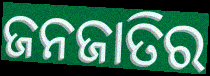
ଜନଜାତିର